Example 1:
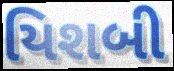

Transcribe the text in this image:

યિશબી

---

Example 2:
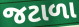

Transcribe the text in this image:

જટાળા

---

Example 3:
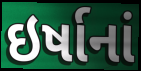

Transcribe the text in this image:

ઇર્ષાનાં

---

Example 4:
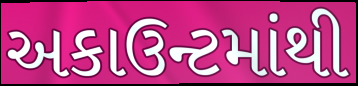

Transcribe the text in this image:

અકાઉન્ટમાંથી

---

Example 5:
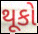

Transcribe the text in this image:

થૂકો